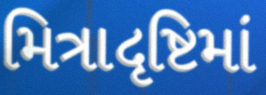
મિત્રાદૃષ્ટિમાં